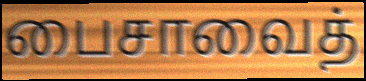
பைசாவைத்